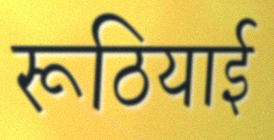
रूठियाई